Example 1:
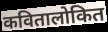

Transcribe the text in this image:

कवितालोकित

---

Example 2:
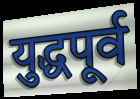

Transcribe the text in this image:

युद्धपूर्व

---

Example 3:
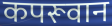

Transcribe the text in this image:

कपरूवान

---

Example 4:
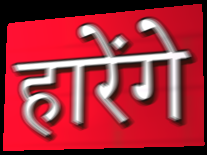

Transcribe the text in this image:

हारेंगे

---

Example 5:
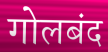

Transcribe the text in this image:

गोलबंद